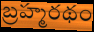
బ్రహ్మరథం